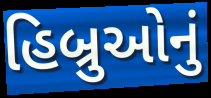
હિબ્રુઓનું